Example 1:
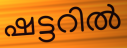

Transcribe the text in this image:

ഷട്ടറിൽ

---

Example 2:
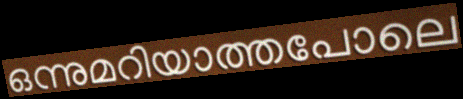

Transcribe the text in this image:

ഒന്നുമറിയാത്തപോലെ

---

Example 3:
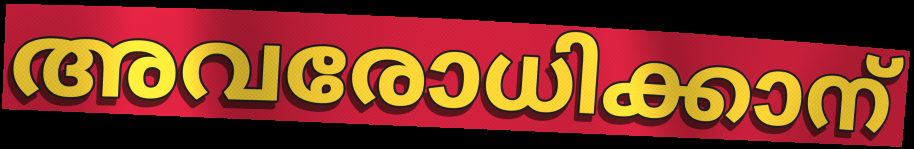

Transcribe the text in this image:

അവരോധിക്കാന്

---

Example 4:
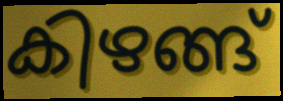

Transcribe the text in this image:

കിഴങ്ങ്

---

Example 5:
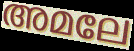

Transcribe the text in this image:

അമലേ